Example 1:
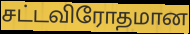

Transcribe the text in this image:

சட்டவிரோதமான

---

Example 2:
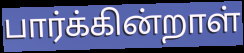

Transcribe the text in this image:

பார்க்கின்றாள்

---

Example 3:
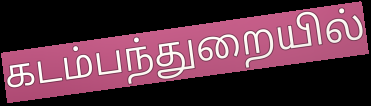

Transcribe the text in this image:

கடம்பந்துறையில்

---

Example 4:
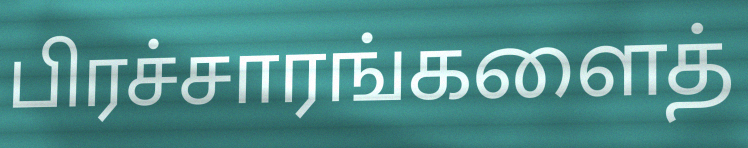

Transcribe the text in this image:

பிரச்சாரங்களைத்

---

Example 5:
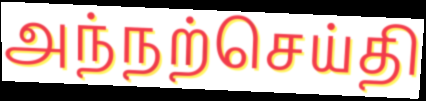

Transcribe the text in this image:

அந்நற்செய்தி